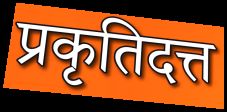
प्रकृतिदत्त